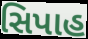
સિપાહ